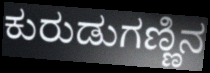
ಕುರುಡುಗಣ್ಣಿನ